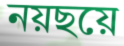
নয়ছয়ে